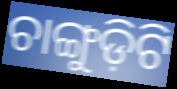
ଚାଙ୍ଗୁଡ଼ିଟି